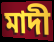
মাদী